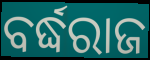
ବର୍ଦ୍ଧରାଜ